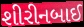
શીરીનબાઈ